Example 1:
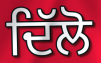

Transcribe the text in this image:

ਦਿੱਲੋ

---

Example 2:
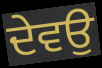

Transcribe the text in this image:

ਦੇਵਉ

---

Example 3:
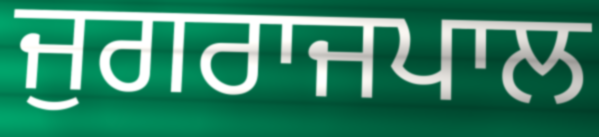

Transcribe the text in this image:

ਜੁਗਰਾਜਪਾਲ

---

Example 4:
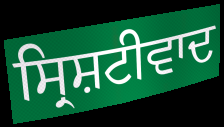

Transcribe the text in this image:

ਸ੍ਰਿਸ਼ਟੀਵਾਦ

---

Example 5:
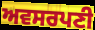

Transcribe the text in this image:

ਅਵਸਰਪਣੀ